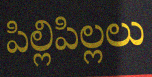
పిల్లిపిల్లలు